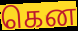
கென